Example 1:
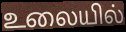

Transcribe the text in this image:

உலையில்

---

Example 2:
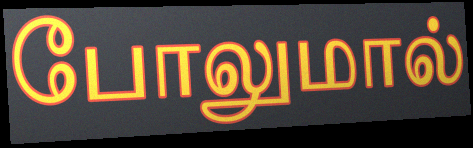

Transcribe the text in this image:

போலுமால்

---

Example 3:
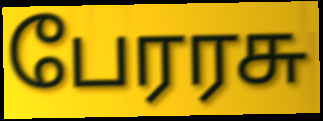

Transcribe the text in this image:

பேரரசு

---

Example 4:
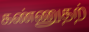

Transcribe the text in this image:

கண்ணுதற்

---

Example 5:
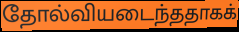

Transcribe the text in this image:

தோல்வியடைந்ததாகக்